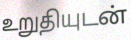
உறுதியுடன்